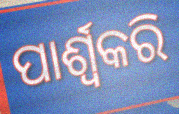
ପାର୍ଶ୍ଵକରି